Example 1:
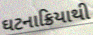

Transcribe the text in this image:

ઘટનાક્રિયાથી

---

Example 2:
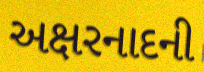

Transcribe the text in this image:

અક્ષરનાદની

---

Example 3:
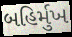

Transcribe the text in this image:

બહિર્મુખ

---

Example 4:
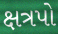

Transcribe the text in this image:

ક્ષત્રપો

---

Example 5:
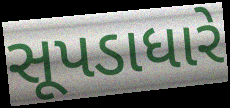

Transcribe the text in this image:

સૂપડાધારે